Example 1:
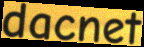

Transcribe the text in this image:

dacnet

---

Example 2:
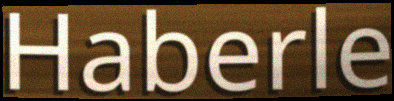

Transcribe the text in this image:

Haberle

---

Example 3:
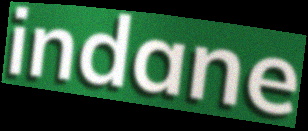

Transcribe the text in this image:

indane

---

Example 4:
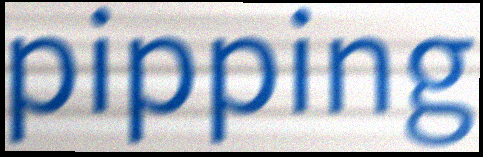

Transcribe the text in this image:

pipping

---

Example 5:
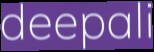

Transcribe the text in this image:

deepali